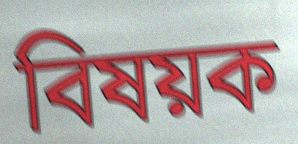
বিষয়ক